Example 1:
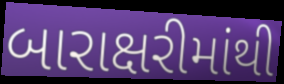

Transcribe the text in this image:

બારાક્ષરીમાંથી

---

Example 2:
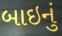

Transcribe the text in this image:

બાઇનું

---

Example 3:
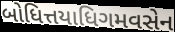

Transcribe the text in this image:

બોધિત્તયાધિગમવસેન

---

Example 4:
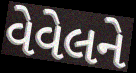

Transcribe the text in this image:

વેવેલને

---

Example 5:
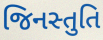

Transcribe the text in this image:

જિનસ્તુતિ